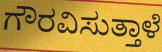
ಗೌರವಿಸುತ್ತಾಳೆ